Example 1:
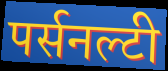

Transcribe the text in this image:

पर्सनल्टी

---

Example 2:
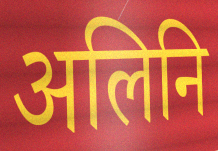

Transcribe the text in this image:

अलिनि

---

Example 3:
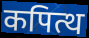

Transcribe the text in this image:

कपित्थ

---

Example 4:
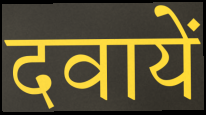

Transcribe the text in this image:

दवायें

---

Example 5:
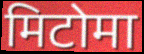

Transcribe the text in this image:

मिटोमा